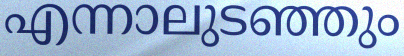
എന്നാലുടഞ്ഞും